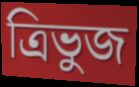
ত্ৰিভুজ